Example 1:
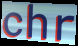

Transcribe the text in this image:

chr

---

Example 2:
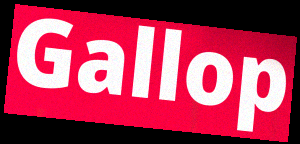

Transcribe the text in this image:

Gallop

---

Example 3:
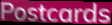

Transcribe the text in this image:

Postcards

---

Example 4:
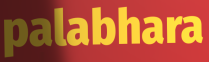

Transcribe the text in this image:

palabhara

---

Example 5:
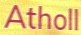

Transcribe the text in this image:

Atholl